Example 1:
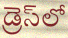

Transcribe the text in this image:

డ్రెస్‌లో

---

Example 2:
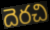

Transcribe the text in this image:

దెరచి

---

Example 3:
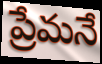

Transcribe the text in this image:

ప్రేమనే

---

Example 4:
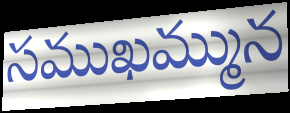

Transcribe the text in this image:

సముఖమ్మున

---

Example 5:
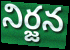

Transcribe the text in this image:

నిర్జన